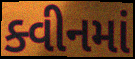
ક્વીનમાં